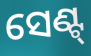
ସେଣ୍ଟ୍